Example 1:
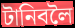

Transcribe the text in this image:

টানিবলৈ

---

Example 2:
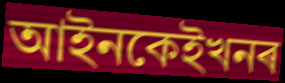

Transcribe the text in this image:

আইনকেইখনৰ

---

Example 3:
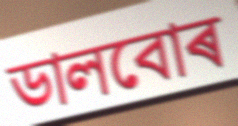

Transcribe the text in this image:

ডালবোৰ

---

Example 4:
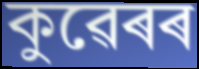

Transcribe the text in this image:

কুৱেৰৰ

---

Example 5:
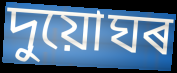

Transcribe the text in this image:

দুয়োঘৰ